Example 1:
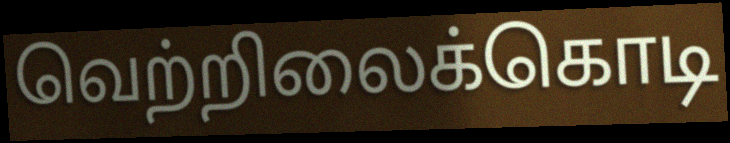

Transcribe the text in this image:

வெற்றிலைக்கொடி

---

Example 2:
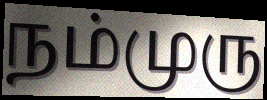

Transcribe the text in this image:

நம்முரு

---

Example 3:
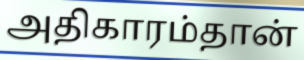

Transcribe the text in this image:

அதிகாரம்தான்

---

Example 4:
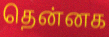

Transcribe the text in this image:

தென்னக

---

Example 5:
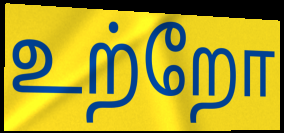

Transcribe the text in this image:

உற்றோ